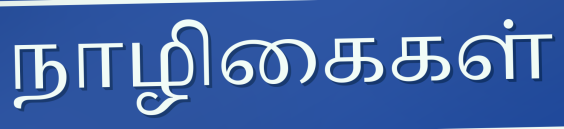
நாழிகைகள்